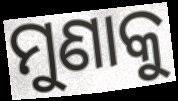
ମୁଣାକୁ